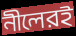
নীলেরই